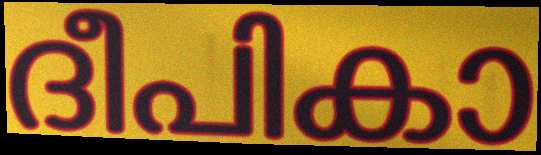
ദീപികാ